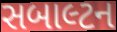
સબાલ્ટન